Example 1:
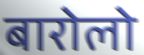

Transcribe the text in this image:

बारोलो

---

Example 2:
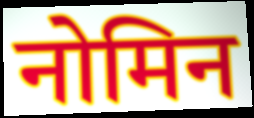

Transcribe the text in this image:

नोमिन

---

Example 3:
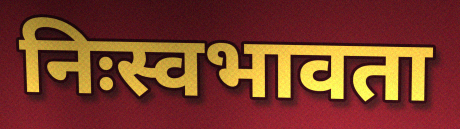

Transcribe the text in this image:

निःस्वभावता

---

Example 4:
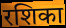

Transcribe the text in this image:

रशिका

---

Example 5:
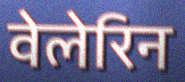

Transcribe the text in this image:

वेलेरिन